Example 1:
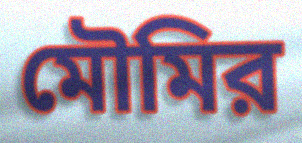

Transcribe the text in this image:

মৌমির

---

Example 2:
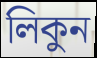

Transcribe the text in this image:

লিকুন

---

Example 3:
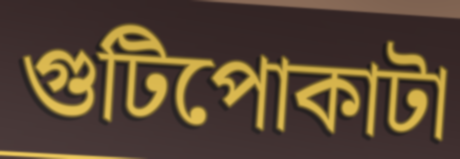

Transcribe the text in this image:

গুটিপোকাটা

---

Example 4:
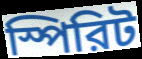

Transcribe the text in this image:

স্পিরিট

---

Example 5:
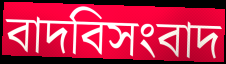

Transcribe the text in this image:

বাদবিসংবাদ